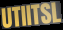
UTIITSL